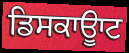
ਡਿਸਕਾਊਾਟ